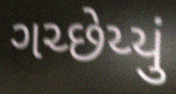
ગચ્છેય્યું